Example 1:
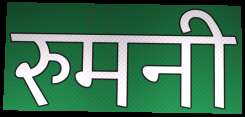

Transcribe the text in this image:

रुमनी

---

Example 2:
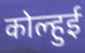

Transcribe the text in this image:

कोल्हुई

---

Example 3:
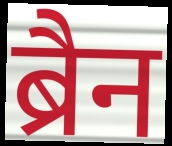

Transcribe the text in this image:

ब्रैन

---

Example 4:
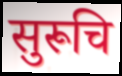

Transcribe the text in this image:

सुरूचि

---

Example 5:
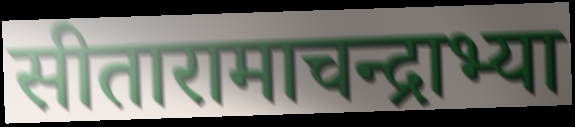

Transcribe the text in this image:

सीतारामाचन्द्राभ्या